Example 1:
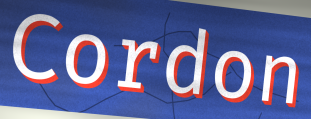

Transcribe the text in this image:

Cordon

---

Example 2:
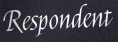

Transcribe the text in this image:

Respondent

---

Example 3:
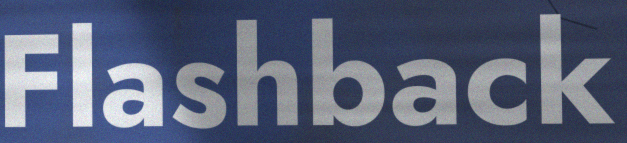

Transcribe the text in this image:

Flashback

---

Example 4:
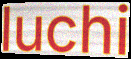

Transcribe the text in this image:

luchi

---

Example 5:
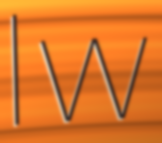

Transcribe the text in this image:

Iw